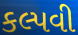
કલ્પવી